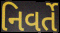
નિવર્તે